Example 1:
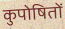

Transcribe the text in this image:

कुपोषितों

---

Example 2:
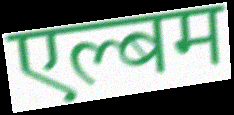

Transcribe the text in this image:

एल्बम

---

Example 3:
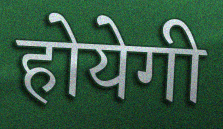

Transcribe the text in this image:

होयेगी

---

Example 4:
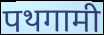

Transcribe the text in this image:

पथगामी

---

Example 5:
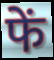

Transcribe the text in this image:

फें